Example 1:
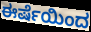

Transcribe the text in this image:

ಈರ್ಷೆಯಿಂದ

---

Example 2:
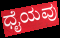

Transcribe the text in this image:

ಧೈಯವು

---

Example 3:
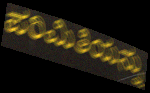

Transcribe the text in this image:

ಪರಿಮಿತಿಯನ್ನು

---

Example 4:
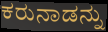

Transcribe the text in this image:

ಕರುನಾಡನ್ನು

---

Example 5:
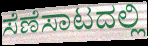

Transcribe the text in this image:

ಸೆಣೆಸಾಟದಲ್ಲಿ